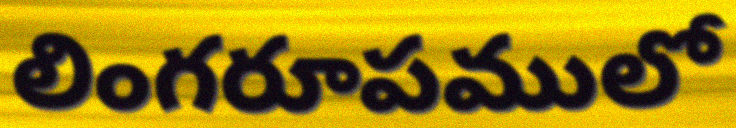
లింగరూపములో